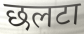
छलटा